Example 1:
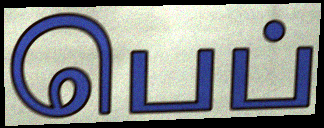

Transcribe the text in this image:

பெப்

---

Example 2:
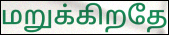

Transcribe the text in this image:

மறுக்கிறதே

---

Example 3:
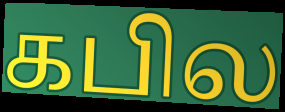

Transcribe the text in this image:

கபில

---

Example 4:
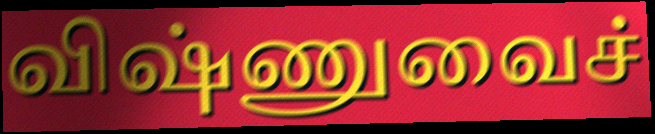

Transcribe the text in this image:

விஷ்ணுவைச்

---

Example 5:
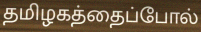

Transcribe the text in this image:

தமிழகத்தைப்போல்